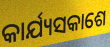
କାର୍ଯ୍ୟସକାଶେ